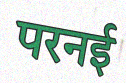
परनई